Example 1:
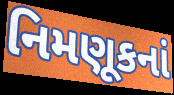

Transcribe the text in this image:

નિમણૂકનાં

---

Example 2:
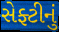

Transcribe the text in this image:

સેફ્ટીનું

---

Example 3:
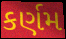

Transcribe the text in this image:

કર્ણમ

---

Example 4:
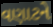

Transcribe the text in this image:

વણાટને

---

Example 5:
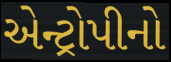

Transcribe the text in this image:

એન્ટ્રોપીનો